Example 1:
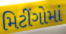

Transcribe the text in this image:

મિટીંગોમાં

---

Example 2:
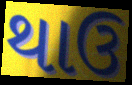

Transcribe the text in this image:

થાઉ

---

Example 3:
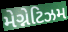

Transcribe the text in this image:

મેગ્નેટિઝમ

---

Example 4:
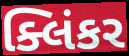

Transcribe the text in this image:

ક્લિંકર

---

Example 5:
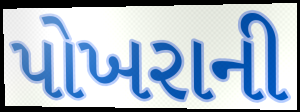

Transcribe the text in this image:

પોખરાની